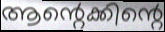
ആന്റെക്കിന്റെ